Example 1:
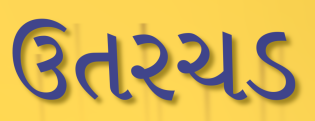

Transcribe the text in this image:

ઉતરચડ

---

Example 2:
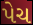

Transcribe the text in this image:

પેચ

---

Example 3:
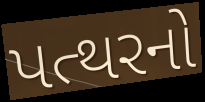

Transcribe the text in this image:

પત્થરનો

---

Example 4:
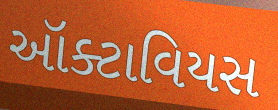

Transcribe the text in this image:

ઑક્ટાવિયસ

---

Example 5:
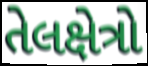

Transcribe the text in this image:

તેલક્ષેત્રો